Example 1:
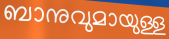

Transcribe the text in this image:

ബാനുവുമായുള്ള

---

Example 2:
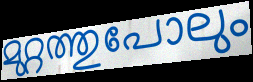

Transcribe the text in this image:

മുറ്റത്തുപോലും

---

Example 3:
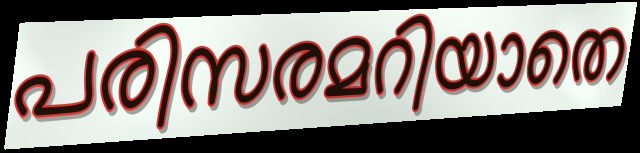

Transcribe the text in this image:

പരിസരമറിയാതെ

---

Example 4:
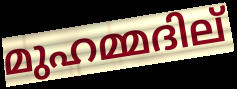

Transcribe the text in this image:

മുഹമ്മദില്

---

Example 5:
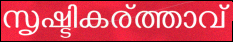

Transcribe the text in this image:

സൃഷ്ടികര്ത്താവ്